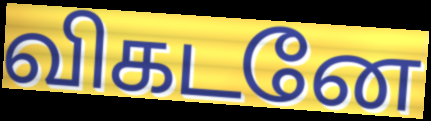
விகடனே